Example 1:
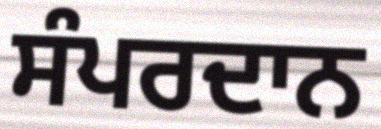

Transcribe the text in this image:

ਸੰਪਰਦਾਨ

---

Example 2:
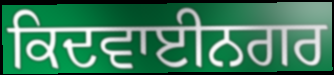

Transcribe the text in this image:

ਕਿਦਵਾਈਨਗਰ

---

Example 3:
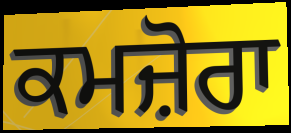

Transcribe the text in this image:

ਕਮਜ਼ੋਰਾ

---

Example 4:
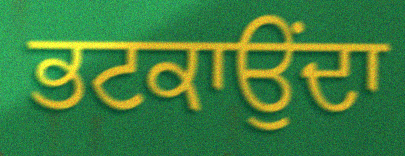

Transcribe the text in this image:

ਭਟਕਾਉਂਦਾ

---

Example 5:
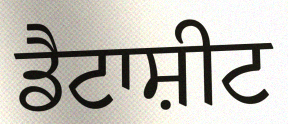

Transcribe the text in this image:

ਡੈਟਾਸ਼ੀਟ